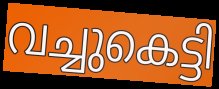
വച്ചുകെട്ടി